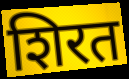
शिरत